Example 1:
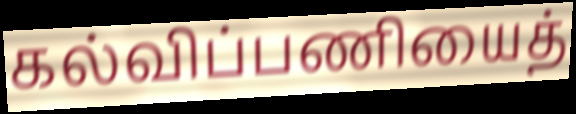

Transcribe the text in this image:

கல்விப்பணியைத்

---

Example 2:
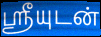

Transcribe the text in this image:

ஸ்ரீயுடன்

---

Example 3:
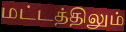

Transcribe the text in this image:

மட்டத்திலும்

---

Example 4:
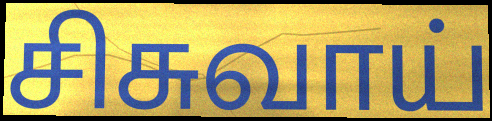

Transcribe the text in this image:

சிசுவாய்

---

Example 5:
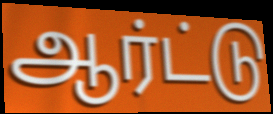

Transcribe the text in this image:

ஆர்ட்டு